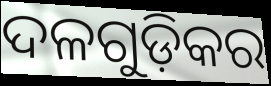
ଦଳଗୁଡ଼ିକର